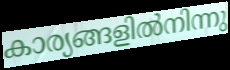
കാര്യങ്ങളിൽനിന്നു